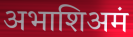
अभाशिअमं